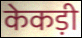
केकड़ी